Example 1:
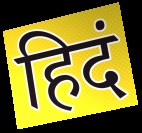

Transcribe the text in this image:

हिदं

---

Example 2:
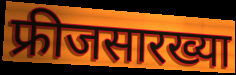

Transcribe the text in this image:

फ्रीजसारख्या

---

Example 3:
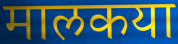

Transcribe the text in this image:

मालकया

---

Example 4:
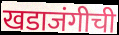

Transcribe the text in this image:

खडाजंगीची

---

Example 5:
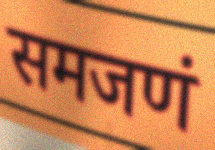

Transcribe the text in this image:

समजणं